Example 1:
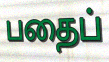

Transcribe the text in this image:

பதைப்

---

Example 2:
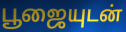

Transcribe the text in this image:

பூஜையுடன்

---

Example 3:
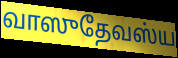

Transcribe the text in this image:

வாஸுதேவஸ்ய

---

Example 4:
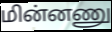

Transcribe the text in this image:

மின்னணு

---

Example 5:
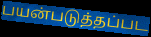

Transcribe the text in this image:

பயன்படுத்தப்பட